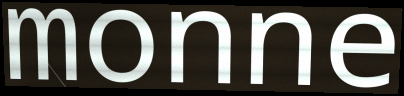
monne